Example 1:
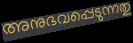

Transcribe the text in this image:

അനുഭവപ്പെടുന്നതു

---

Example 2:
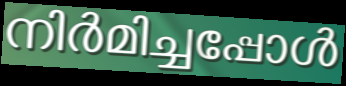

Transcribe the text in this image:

നിർമിച്ചപ്പോൾ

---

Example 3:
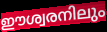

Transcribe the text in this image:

ഈശ്വരനിലും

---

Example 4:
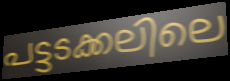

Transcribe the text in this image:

പട്ടടക്കലിലെ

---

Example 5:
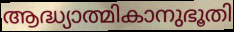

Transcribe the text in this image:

ആദ്ധ്യാത്മികാനുഭൂതി